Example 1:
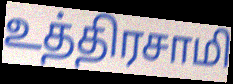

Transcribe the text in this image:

உத்திரசாமி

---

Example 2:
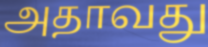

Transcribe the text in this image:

அதாவது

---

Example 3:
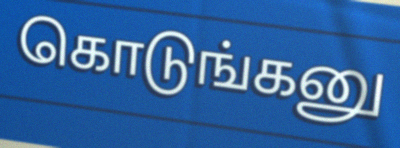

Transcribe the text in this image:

கொடுங்கனு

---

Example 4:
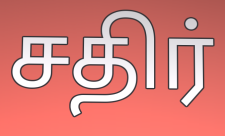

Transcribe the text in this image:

சதிர்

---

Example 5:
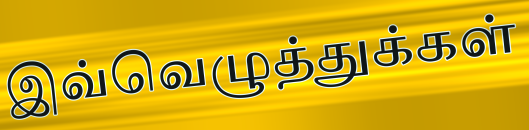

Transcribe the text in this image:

இவ்வெழுத்துக்கள்